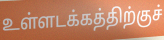
உள்ளடக்கத்திற்குச்